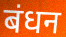
बंधन